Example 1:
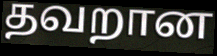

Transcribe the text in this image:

தவறான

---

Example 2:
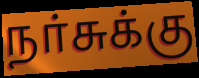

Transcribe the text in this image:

நர்சுக்கு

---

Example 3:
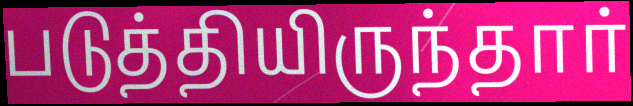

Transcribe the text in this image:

படுத்தியிருந்தார்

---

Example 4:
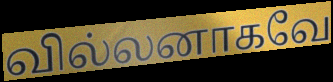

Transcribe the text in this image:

வில்லனாகவே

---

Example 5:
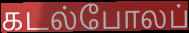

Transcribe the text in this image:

கடல்போலப்